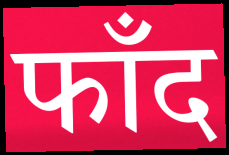
फाँद